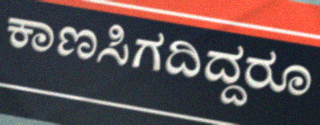
ಕಾಣಸಿಗದಿದ್ದರೂ